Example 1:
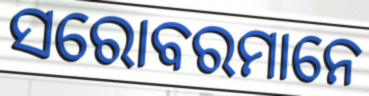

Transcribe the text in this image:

ସରୋବରମାନେ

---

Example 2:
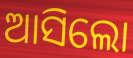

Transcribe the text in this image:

ଆସିଲୋ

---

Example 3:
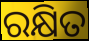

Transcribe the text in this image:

ରକ୍ଷିତ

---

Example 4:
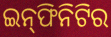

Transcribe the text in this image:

ଇନ୍‌ଫିନିଟିର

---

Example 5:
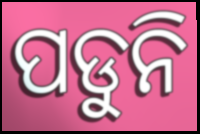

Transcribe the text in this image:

ପଡୁନି